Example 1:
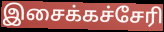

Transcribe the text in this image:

இசைக்கச்சேரி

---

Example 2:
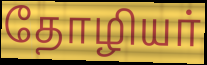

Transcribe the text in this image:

தோழியர்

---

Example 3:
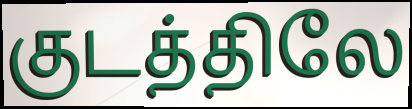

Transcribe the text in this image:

குடத்திலே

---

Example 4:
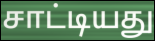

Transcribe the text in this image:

சாட்டியது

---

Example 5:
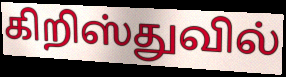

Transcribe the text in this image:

கிறிஸ்துவில்